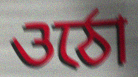
ওঠো